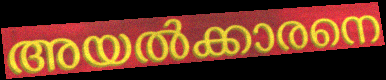
അയൽക്കാരനെ